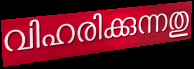
വിഹരിക്കുന്നതു